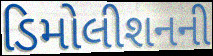
ડિમોલીશનની